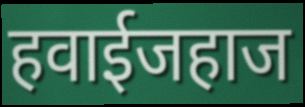
हवाईजहाज